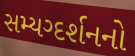
સમ્યગ્દર્શનનો